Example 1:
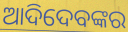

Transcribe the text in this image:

ଆଦିଦେବଙ୍କର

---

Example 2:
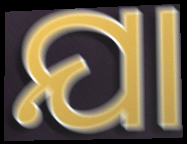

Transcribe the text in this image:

ଯା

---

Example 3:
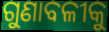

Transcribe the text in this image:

ଗୁଣାବଳୀକୁ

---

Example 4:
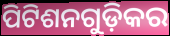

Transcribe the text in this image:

ପିଟିଶନଗୁଡ଼ିକର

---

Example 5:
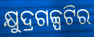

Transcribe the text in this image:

କ୍ଷୁଦ୍ରଗଳ୍ପଟିର